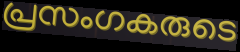
പ്രസംഗകരുടെ